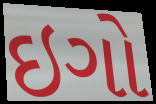
ઇગો